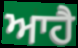
ਆਹੈ